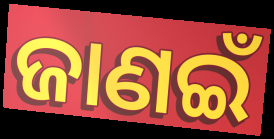
ଜାଣଇଁ